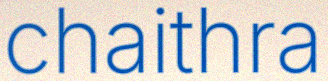
chaithra